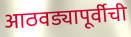
आठवड्यापूर्वीची